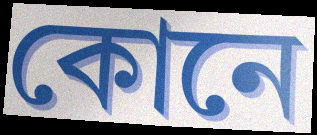
কোনে